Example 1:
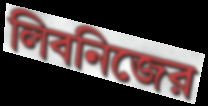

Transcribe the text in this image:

লিবনিজের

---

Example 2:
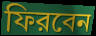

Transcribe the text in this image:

ফিরবেন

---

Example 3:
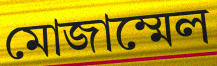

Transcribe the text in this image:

মোজাম্মেল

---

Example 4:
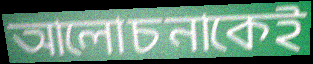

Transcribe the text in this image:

আলোচনাকেই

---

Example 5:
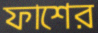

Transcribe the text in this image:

ফাশের